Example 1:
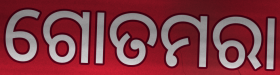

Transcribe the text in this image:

ଗୋତମରା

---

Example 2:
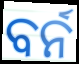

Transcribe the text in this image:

ବର୍ନ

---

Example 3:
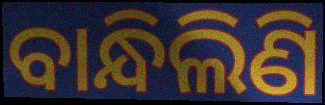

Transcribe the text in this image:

ବାନ୍ଧିଲିଣି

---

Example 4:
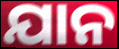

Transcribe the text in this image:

ଯାନ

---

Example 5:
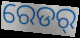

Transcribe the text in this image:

ରେଡର୍